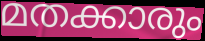
മതക്കാരും